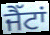
ਜੈੱਟਾਂ